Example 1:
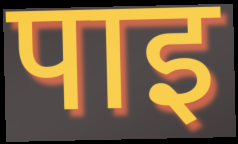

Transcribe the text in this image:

पाइ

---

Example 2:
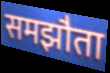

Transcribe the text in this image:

समझौता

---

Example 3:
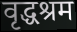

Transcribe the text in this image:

वृद्धश्रम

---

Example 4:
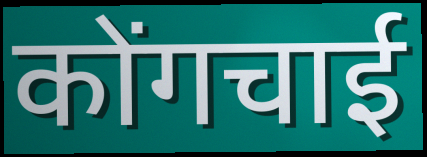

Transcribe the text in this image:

कोंगचाई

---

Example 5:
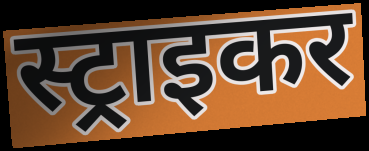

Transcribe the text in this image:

स्ट्राइकर